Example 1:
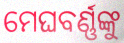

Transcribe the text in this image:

ମେଘବର୍ଣ୍ଣଙ୍କୁ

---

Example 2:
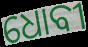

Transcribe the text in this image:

ଧୋବୀ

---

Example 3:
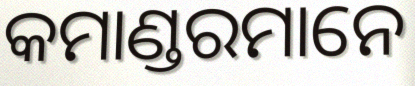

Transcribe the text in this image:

କମାଣ୍ଡରମାନେ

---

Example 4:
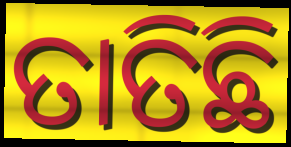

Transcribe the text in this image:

ତାତିଛି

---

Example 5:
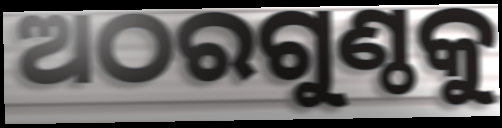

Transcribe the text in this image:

ଅଠରଗୁଣ୍ଠକୁ